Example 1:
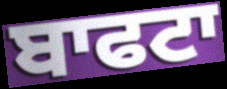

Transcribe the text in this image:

ਬਾਫਟਾ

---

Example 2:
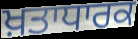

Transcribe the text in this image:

ਖ਼ਤਾਧਾਰਕ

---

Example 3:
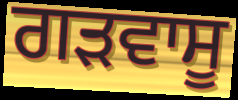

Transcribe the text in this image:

ਗੜਵਾਸੂ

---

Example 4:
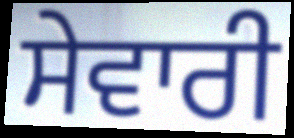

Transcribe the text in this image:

ਸੇਵਾਰੀ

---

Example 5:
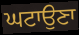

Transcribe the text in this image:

ਘਟਾਉਣਾ